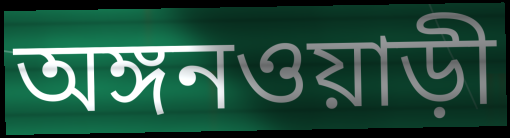
অঙ্গনওয়াড়ী